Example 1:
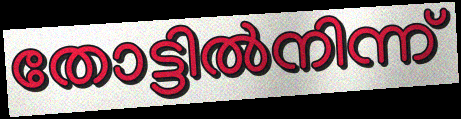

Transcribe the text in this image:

തോട്ടിൽനിന്ന്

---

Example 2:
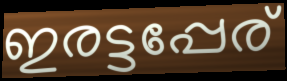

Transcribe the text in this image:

ഇരട്ടപ്പേര്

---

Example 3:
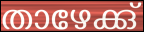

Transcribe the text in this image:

താഴേക്കു്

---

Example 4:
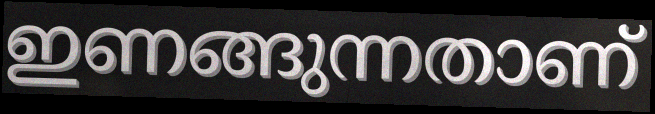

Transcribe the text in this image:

ഇണങ്ങുന്നതാണ്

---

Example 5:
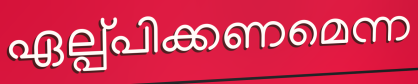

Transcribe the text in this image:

ഏല്പ്പിക്കണമെന്ന